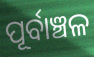
ପୂର୍ବାଞ୍ଚଳ